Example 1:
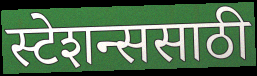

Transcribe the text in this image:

स्टेशन्ससाठी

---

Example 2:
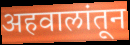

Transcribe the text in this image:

अहवालांतून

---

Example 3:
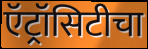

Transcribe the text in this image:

ऍट्रॉसिटीचा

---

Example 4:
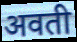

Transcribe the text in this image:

अवती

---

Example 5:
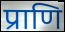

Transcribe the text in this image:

प्राणि